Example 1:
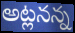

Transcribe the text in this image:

అట్లనన్న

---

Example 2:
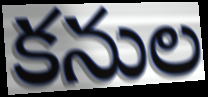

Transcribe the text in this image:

కనుల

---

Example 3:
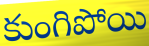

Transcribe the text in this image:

కుంగిపోయి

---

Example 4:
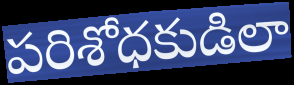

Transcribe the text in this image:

పరిశోధకుడిలా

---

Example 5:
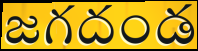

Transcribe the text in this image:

జగదండ